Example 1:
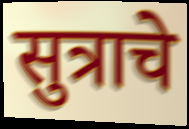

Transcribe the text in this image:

सुत्राचे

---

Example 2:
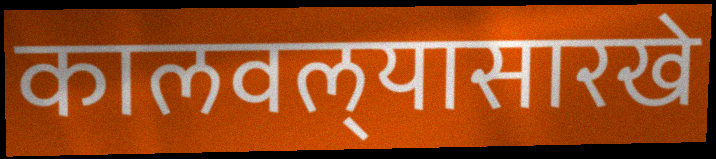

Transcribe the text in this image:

कालवल्यासारखे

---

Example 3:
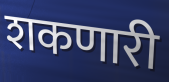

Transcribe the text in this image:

शकणारी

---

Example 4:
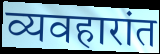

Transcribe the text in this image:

व्यवहारांत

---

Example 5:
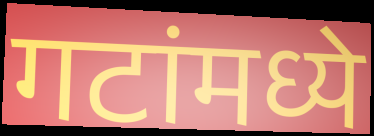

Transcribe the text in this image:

गटांमध्ये